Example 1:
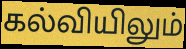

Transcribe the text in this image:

கல்வியிலும்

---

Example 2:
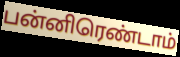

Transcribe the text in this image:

பன்னிரெண்டாம்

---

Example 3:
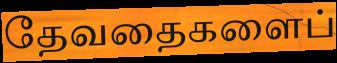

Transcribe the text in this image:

தேவதைகளைப்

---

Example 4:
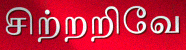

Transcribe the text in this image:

சிற்றறிவே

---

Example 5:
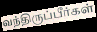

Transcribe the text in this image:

வந்திருப்பீர்கள்